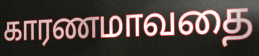
காரணமாவதை